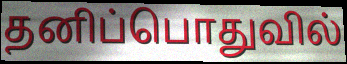
தனிப்பொதுவில்